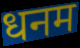
धनम